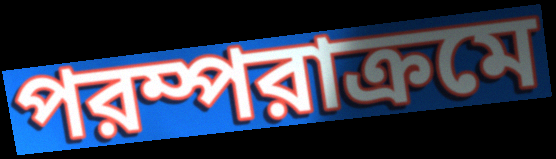
পরম্পরাক্রমে